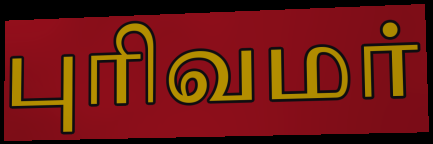
புரிவமர்